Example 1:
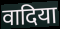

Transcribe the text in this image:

वादिया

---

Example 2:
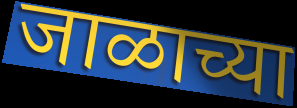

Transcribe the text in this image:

जाळाच्या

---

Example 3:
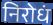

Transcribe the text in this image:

निरोधं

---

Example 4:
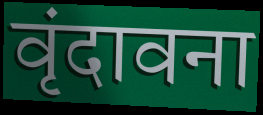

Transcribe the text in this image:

वृंदावना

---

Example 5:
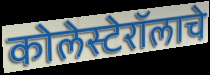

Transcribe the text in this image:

कोलेस्टेरॉलाचे